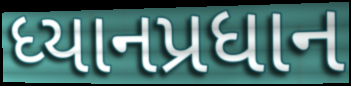
ધ્યાનપ્રધાન